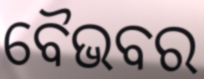
ବୈଭବର